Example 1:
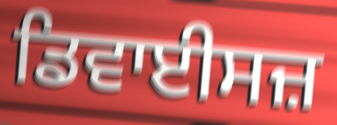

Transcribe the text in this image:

ਡਿਵਾਈਸਜ਼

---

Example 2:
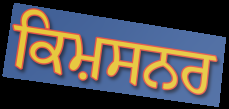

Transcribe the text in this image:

ਕਿਮ਼ਸਨਰ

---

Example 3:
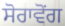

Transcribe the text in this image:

ਸੋਰਾਵੋਂਗ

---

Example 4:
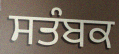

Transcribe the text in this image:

ਸਤੰਬਕ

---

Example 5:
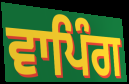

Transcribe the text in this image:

ਵਾਪਿੰਗ